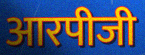
आरपीजी